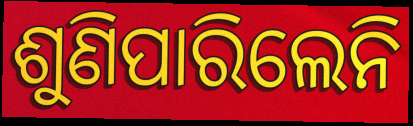
ଶୁଣିପାରିଲେନି